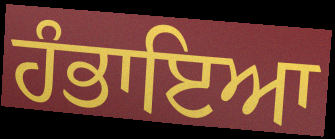
ਹੰਭਾਇਆ